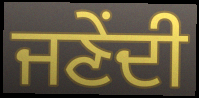
ਜਣੇਂਦੀ